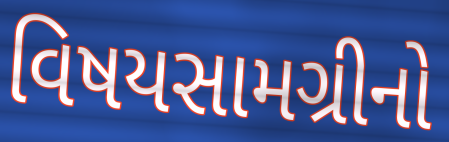
વિષયસામગ્રીનો